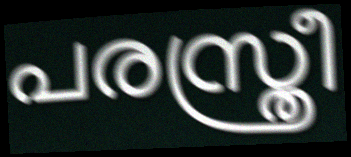
പരസ്ത്രീ